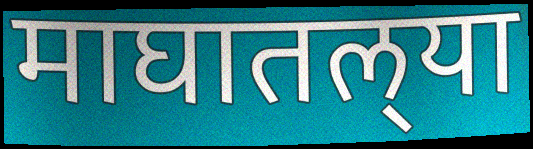
माघातल्या